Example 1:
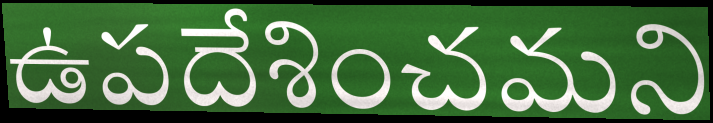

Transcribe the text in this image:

ఉపదేశించమని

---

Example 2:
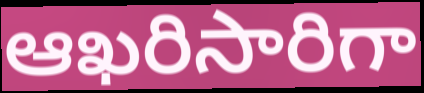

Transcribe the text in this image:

ఆఖరిసారిగా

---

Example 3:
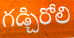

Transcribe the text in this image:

గడ్చిరోలి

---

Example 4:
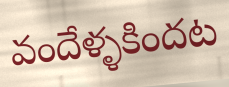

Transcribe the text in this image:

వందేళ్ళకిందట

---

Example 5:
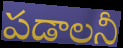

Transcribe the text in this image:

పడాలనీ